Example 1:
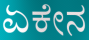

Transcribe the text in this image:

ಏಕೇನ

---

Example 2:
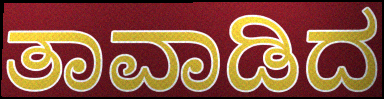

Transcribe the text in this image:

ತಾವಾಡಿದ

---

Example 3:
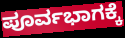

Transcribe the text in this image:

ಪೂರ್ವಭಾಗಕ್ಕೆ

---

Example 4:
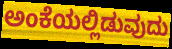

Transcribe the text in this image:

ಅಂಕೆಯಲ್ಲಿಡುವುದು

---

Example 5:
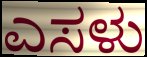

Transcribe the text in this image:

ಎಸಳು